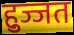
ह़ुज्जत